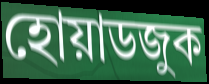
হোয়াডজুক